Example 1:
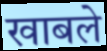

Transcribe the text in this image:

खाबले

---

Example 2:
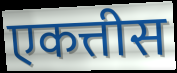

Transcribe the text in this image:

एकत्तीस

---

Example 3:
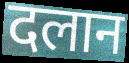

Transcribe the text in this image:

दलान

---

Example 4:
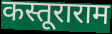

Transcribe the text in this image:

कस्तूराराम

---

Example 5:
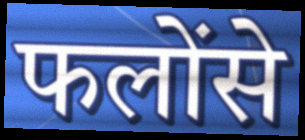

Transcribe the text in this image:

फलोंसे